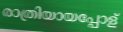
രാത്രിയായപ്പോള്